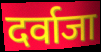
दर्वाजा